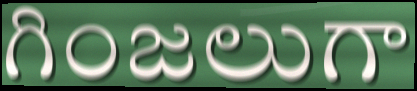
గింజలుగా